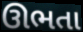
ઊભતા